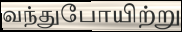
வந்துபோயிற்று